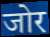
जोर